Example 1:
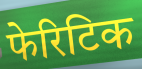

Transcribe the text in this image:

फेरिटिक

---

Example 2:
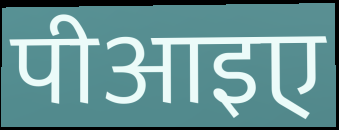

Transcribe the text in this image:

पीआइए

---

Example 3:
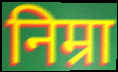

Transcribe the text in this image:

निम्रा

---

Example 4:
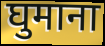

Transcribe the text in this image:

घुमाना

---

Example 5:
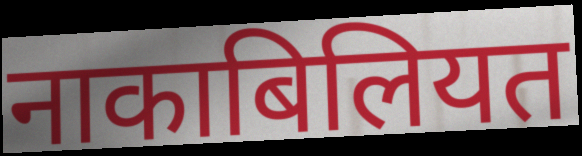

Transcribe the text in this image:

नाकाबिलियत